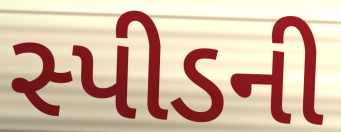
સ્પીડની